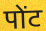
पोंट